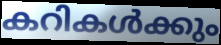
കറികൾക്കും